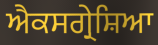
ਐਕਸਗ੍ਰੇਸ਼ਿਆ